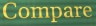
Compare